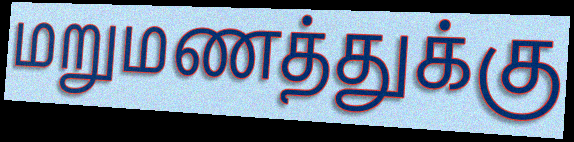
மறுமணத்துக்கு